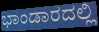
ಭಾಂಡಾರದಲ್ಲಿ